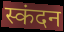
स्कंदन